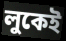
লুকেই